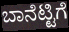
ಬಾನೆಟ್ಟಿಗೆ